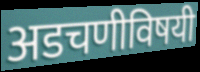
अडचणीविषयी